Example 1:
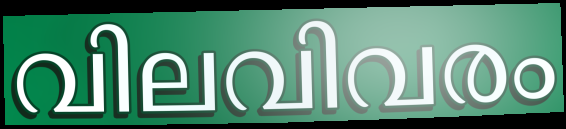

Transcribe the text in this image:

വിലവിവരം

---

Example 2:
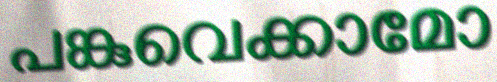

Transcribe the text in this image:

പങ്കുവെക്കാമോ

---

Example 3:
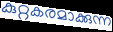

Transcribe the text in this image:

കുറ്റകരമാക്കുന്ന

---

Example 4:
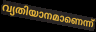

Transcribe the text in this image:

വ്യതിയാനമാണെന്ന്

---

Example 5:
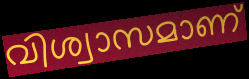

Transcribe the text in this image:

വിശ്വാസമാണ്